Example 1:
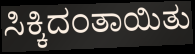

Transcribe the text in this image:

ಸಿಕ್ಕಿದಂತಾಯಿತು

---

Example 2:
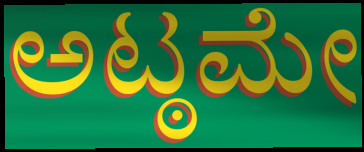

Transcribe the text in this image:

ಅಟ್ಠಮೇ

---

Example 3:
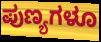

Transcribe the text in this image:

ಪುಣ್ಯಗಳೂ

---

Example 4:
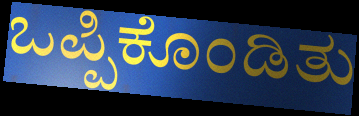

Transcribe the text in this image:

ಒಪ್ಪಿಕೊಂಡಿತು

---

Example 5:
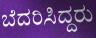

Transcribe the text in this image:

ಬೆದರಿಸಿದ್ದರು